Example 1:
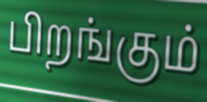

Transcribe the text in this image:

பிறங்கும்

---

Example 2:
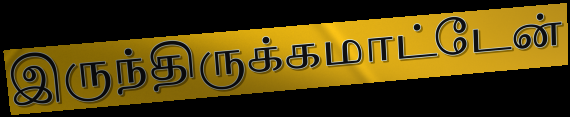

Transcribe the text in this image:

இருந்திருக்கமாட்டேன்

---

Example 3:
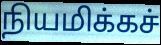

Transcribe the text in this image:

நியமிக்கச்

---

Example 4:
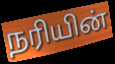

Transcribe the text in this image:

நரியின்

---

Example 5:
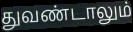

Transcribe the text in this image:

துவண்டாலும்